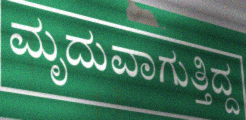
ಮೃದುವಾಗುತ್ತಿದ್ದ